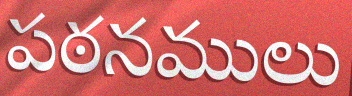
పఠనములు